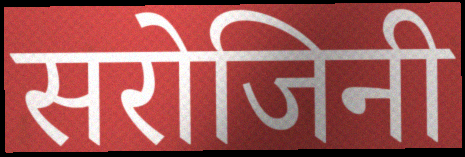
सरोजिनी